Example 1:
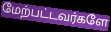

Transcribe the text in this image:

மேற்பட்டவர்களே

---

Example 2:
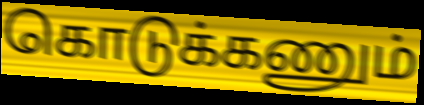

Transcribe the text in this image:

கொடுக்கணும்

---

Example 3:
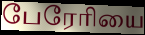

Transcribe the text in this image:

பேரேரியை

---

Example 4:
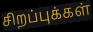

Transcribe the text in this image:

சிறப்புக்கள்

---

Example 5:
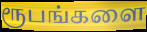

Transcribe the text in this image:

ரூபங்களை